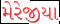
મેરેજીયા